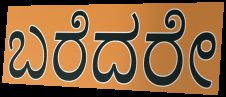
ಬರೆದರೇ